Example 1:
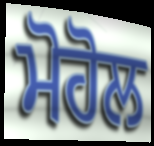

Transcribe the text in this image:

ਮੋਹੋਲ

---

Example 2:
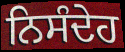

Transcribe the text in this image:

ਨਿਸੰਦੇਹ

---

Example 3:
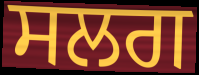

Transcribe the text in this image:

ਸਲਗ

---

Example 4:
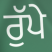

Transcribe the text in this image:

ਰੁੱਪੇ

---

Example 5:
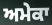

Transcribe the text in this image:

ਅਮੇਕਾ